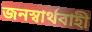
জনস্বার্থবাহী